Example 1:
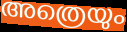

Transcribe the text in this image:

അത്രെയും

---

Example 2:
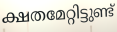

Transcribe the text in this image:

ക്ഷതമേറ്റിട്ടുണ്ട്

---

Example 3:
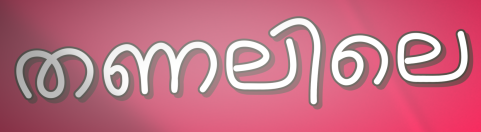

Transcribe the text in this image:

തണലിലെ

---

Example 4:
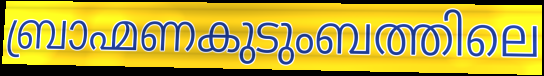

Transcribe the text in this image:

ബ്രാഹ്മണകുടുംബത്തിലെ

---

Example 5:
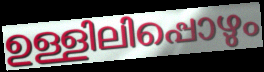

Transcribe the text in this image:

ഉള്ളിലിപ്പൊഴും